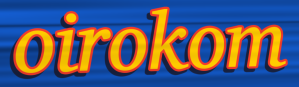
oirokom